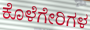
ಕೊಳೆಗೇರಿಗಳ